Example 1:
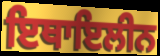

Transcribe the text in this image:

ਇਥਾਇਲੀਨ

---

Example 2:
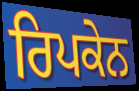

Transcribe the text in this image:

ਰਿਪਕੇਨ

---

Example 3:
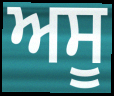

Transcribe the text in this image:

ਅਸੂ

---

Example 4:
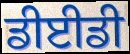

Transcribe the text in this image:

ਡੀਈਡੀ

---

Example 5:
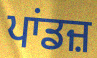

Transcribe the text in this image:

ਪਾਂਡਜ਼